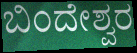
ಬಿಂದೇಶ್ವರ